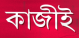
কাজীই